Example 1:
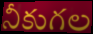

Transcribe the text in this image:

నీకుగల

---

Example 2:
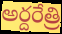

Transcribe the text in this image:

అర్దరేత్రి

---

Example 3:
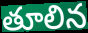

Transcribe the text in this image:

తూలిన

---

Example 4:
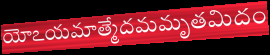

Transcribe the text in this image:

యోఽయమాత్మేదమమృతమిదం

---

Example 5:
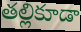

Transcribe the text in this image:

తల్లికూడా